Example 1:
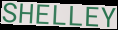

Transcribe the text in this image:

SHELLEY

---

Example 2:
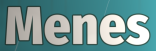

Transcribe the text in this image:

Menes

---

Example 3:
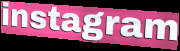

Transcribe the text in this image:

instagram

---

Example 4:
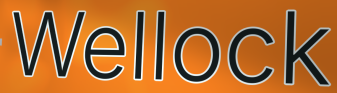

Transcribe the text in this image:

Wellock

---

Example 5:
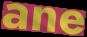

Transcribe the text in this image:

ane